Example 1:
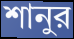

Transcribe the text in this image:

শানুর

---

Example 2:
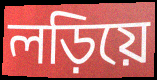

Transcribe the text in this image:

লড়িয়ে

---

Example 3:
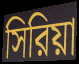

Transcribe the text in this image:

সিরিয়া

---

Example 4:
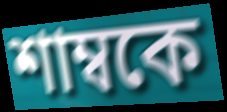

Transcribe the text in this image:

শাম্বকে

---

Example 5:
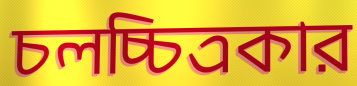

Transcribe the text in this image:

চলচ্চিত্রকার